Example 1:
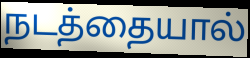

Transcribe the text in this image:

நடத்தையால்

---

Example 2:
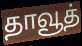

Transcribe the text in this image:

தாவூத்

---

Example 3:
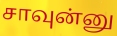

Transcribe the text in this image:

சாவுன்னு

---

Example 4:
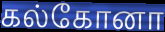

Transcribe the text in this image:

கல்கோனா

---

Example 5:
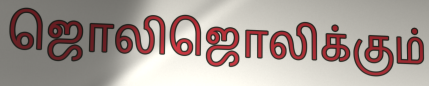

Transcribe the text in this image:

ஜொலிஜொலிக்கும்